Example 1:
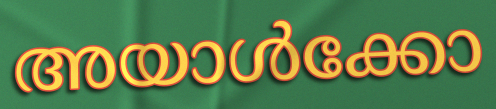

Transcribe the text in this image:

അയാൾക്കോ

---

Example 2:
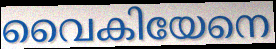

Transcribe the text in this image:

വൈകിയേനെ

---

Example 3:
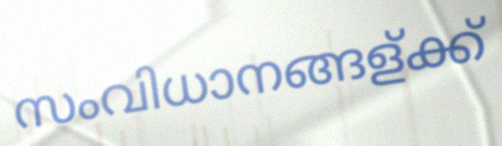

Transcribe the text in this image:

സംവിധാനങ്ങള്ക്ക്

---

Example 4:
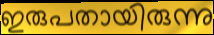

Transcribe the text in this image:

ഇരുപതായിരുന്നു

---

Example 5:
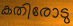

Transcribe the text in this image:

കതിരോടു